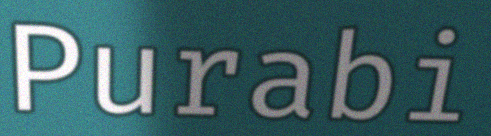
Purabi